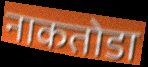
नाकतोडा